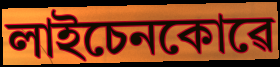
লাইচেনকোৱে